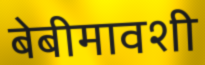
बेबीमावशी